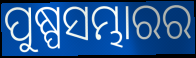
ପୁଷ୍ପସମ୍ଭାରର